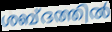
ശബ്ദത്തിൽ